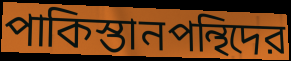
পাকিস্তানপন্থিদের